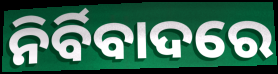
ନିର୍ବିବାଦରେ